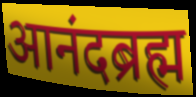
आनंदब्रह्म